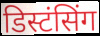
डिस्टंसिंग